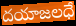
దయాజలధే